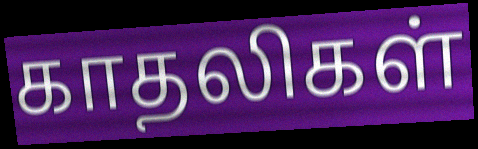
காதலிகள்